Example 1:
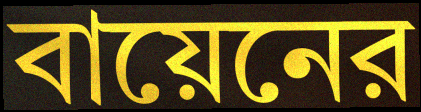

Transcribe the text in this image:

বায়েনের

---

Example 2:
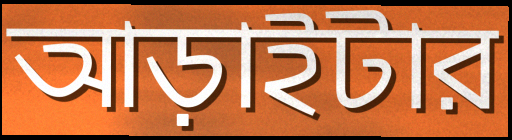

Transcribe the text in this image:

আড়াইটার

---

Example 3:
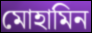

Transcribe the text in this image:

মোহামিন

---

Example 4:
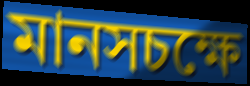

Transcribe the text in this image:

মানসচক্ষে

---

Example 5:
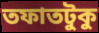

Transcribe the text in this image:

তফাতটুকু